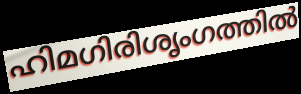
ഹിമഗിരിശൃംഗത്തിൽ